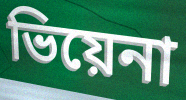
ভিয়েনা